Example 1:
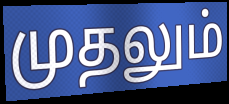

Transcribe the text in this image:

முதலும்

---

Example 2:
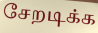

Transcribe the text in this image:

சேறடிக்க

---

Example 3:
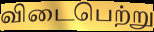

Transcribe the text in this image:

விடைபெற்று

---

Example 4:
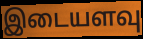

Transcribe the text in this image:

இடையளவு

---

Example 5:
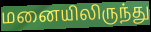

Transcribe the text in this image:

மனையிலிருந்து